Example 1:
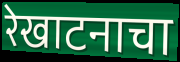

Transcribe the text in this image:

रेखाटनाचा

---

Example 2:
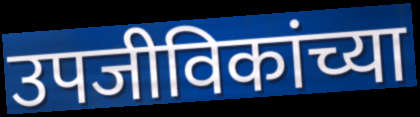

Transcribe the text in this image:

उपजीविकांच्या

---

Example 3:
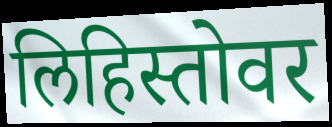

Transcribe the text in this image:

लिहिस्तोवर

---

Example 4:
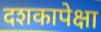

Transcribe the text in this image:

दशकापेक्षा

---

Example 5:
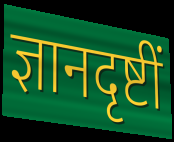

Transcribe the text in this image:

ज्ञानदृष्टीं